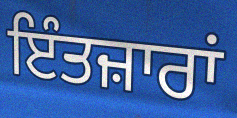
ਇੰਤਜ਼ਾਰਾਂ